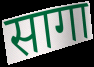
सागा